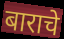
बाराचे